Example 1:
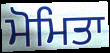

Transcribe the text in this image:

ਮੋਮਿਤਾ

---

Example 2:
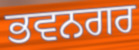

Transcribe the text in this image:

ਭਵਨਗਰ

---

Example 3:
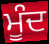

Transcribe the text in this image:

ਮੂੰਦ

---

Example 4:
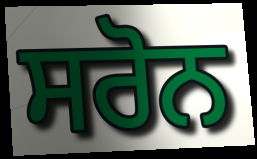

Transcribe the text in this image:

ਸਰੋਨ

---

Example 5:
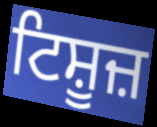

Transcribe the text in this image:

ਟਿਸ਼ੂਜ਼